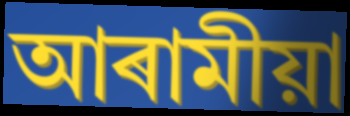
আৰামীয়া